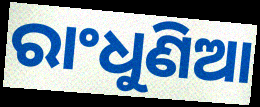
ରାଂଧୁଣିଆ